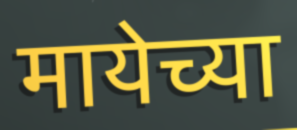
मायेच्या